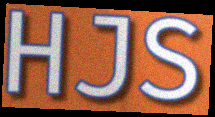
HJS